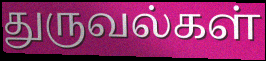
துருவல்கள்